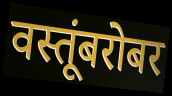
वस्तूंबरोबर